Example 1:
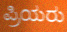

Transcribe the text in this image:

ಪ್ರಿಯರು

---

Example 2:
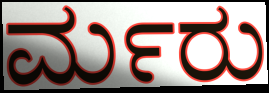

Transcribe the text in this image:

ರ್ಮರು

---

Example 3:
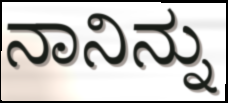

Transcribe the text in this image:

ನಾನಿನ್ನು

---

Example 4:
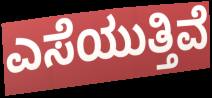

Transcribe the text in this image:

ಎಸೆಯುತ್ತಿವೆ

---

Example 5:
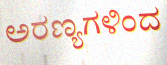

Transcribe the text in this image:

ಅರಣ್ಯಗಳಿಂದ